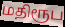
மதிரூப